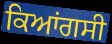
ਕਿਆਂਗਸੀ